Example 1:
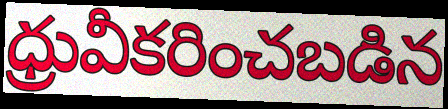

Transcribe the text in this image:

ధ్రువీకరించబడిన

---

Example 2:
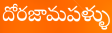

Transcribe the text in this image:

దోరజామపళ్ళు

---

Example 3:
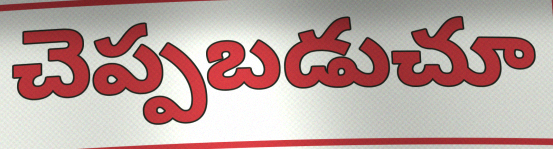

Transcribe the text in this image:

చెప్పబడుచూ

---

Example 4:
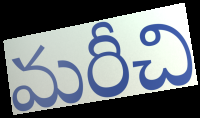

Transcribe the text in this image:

మరీచి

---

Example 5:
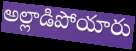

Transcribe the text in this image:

అల్లాడిపోయారు